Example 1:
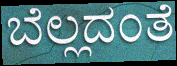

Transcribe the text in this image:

ಬೆಲ್ಲದಂತೆ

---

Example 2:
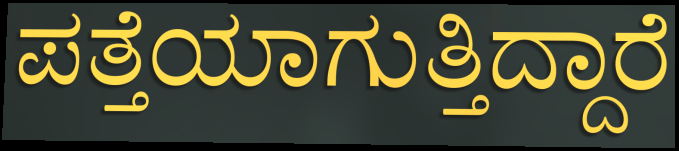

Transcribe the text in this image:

ಪತ್ತೆಯಾಗುತ್ತಿದ್ದಾರೆ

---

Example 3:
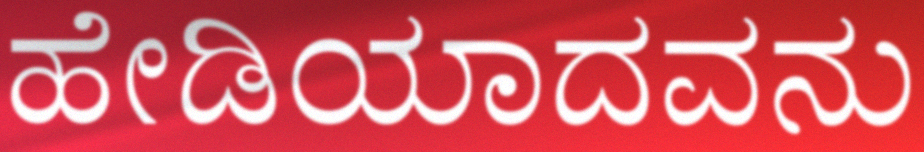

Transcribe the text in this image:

ಹೇಡಿಯಾದವನು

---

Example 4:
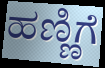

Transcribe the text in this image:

ಹಣ್ಣಿಗೆ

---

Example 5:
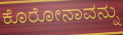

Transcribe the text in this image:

ಕೊರೋನಾವನ್ನು